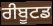
ਰੀਬੂਟਡ